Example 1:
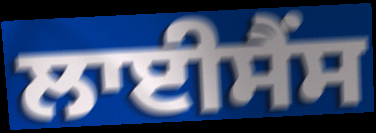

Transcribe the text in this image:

ਲਾਈਸੈਂਸ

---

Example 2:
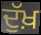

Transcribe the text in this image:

ਦੁੱਖ਼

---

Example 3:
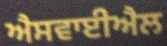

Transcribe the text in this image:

ਐਸਵਾਈਐਲ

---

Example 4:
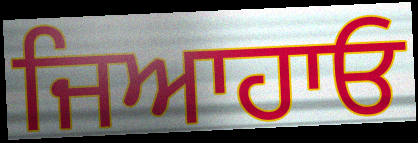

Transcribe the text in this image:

ਜਿਆਹਾਓ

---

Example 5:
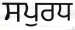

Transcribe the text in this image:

ਸਪੁਰਧ